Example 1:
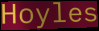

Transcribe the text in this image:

Hoyles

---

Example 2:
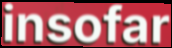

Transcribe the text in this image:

insofar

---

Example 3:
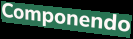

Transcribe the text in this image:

Componendo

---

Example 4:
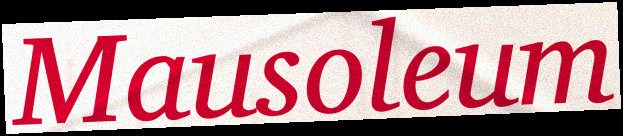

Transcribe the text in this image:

Mausoleum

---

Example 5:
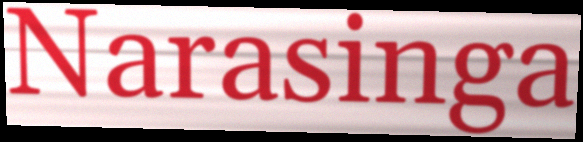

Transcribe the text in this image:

Narasinga